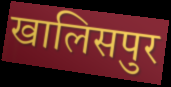
खालिसपुर